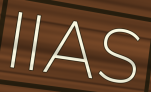
IIAS